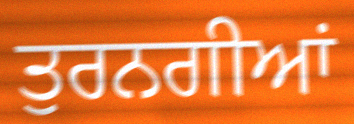
ਤੁਰਨਗੀਆਂ